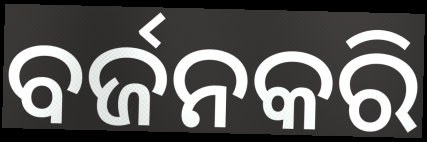
ବର୍ଜନକରି